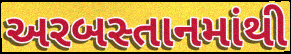
અરબસ્તાનમાંથી